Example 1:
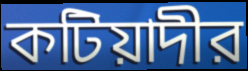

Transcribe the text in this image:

কটিয়াদীর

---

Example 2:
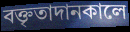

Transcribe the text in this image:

বক্তৃতাদানকালে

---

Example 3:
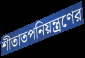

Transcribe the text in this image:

শীতাতপনিয়ন্ত্রণের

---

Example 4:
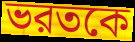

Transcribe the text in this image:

ভরতকে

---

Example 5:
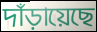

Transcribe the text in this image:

দাঁড়ায়েছে